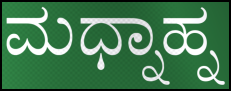
ಮಧ್ನಾಹ್ನ